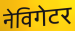
नेविगेटर